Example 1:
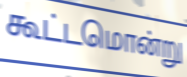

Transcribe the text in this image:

கூட்டமொன்று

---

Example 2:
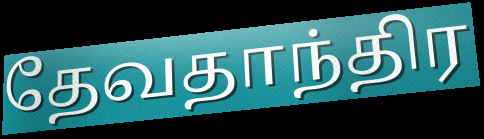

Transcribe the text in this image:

தேவதாந்திர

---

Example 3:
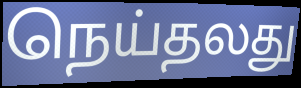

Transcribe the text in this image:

நெய்தலது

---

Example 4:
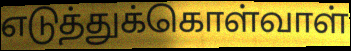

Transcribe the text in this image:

எடுத்துக்கொள்வாள்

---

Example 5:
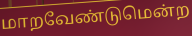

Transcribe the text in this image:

மாறவேண்டுமென்ற